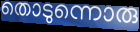
തൊടുന്നൊരു